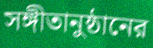
সঙ্গীতানুষ্ঠানের